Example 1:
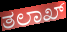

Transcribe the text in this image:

ತಲಾಖ್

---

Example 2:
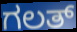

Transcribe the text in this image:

ಗಲತ್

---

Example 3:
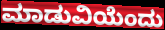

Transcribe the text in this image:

ಮಾಡುವಿಯೆಂದು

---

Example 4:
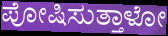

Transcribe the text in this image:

ಪೋಷಿಸುತ್ತಾಳೋ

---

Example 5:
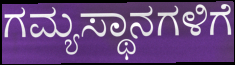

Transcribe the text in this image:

ಗಮ್ಯಸ್ಥಾನಗಳಿಗೆ